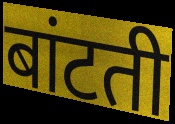
बांटती